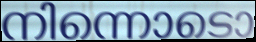
നിന്നൊടൊ